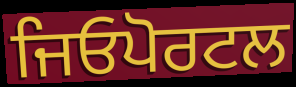
ਜਿਓਪੋਰਟਲ